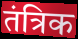
तंत्रिक